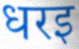
धरइ